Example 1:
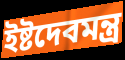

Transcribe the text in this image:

ইষ্টদেবমন্ত্র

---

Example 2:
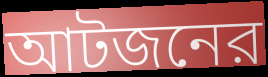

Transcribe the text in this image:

আটজনের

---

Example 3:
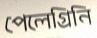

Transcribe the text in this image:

পেলেগ্রিনি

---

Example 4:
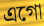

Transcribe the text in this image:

এগো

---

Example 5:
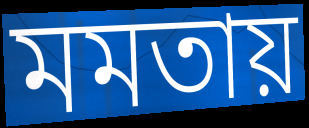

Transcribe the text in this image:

মমতায়